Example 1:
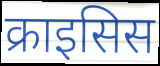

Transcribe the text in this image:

क्राइसिस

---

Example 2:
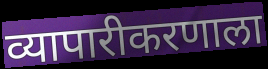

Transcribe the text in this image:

व्यापारीकरणाला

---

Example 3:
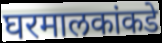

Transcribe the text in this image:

घरमालकांकडे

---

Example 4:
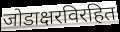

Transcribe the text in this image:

जोडाक्षरविरहित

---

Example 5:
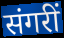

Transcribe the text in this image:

संगरीं